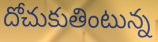
దోచుకుతింటున్న